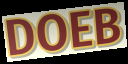
DOEB